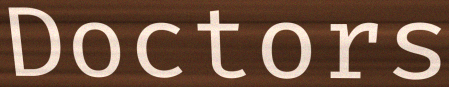
Doctors